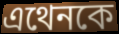
এথেনকে